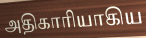
அதிகாரியாகிய